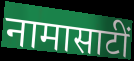
नामासाटीं